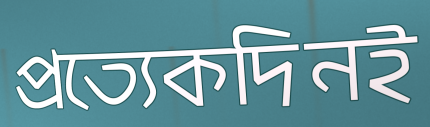
প্রত্যেকদিনই